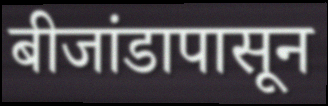
बीजांडापासून